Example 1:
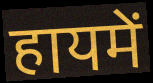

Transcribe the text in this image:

हायमें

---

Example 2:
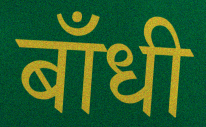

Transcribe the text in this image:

बाँधी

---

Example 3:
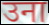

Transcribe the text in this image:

उना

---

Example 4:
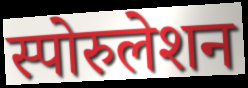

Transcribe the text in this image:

स्पोरुलेशन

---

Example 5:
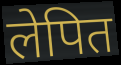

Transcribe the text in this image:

लेपित